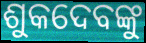
ଶୁକଦେବଙ୍କୁ